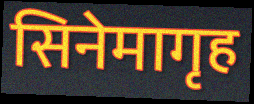
सिनेमागृह